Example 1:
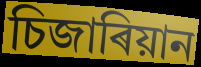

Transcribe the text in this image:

চিজাৰিয়ান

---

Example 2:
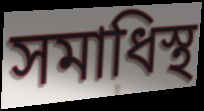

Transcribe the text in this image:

সমাধিস্থ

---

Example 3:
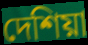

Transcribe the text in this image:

দেশিয়া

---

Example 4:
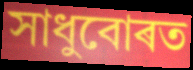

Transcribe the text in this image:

সাধুবোৰত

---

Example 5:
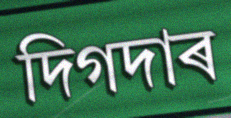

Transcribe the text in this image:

দিগদাৰ